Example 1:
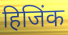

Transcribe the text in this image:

हिजिंक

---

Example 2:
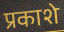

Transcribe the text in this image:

प्रकाशे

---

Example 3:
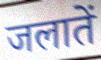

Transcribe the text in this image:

जलातें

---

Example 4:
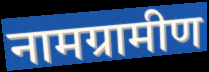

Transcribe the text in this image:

नामग्रामीण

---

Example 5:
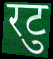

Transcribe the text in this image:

रटु